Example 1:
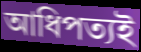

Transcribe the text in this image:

আধিপত্যই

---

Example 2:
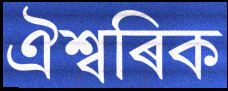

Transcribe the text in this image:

ঐশ্বৰিক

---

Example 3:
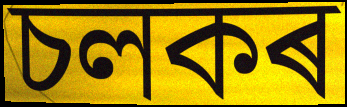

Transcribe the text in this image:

চলকৰ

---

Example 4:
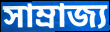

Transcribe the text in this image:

সাম্ৰাজ্য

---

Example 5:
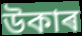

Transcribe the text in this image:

উকাৰ